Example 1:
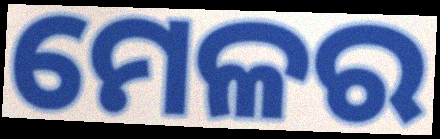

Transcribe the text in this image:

ମେଳର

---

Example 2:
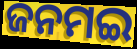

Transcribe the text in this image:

ଜନମଇ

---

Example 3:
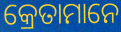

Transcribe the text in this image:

କ୍ରେତାମାନେ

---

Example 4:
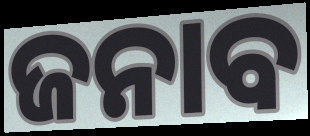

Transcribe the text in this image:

ଜନାବ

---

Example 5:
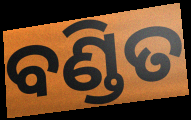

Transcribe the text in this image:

ବଣ୍ଡିତ